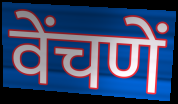
वेंचणें